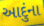
આદુંના